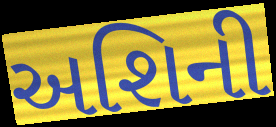
અશિની